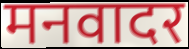
मनवादर